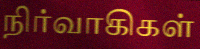
நிர்வாகிகள்